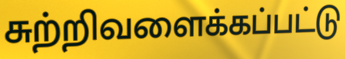
சுற்றிவளைக்கப்பட்டு